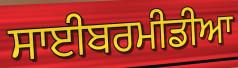
ਸਾਈਬਰਮੀਡੀਆ